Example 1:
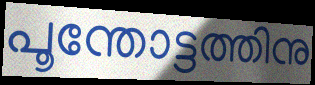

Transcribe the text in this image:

പൂന്തോട്ടത്തിനു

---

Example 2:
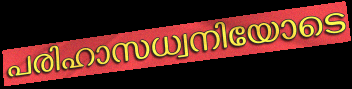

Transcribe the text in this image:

പരിഹാസധ്വനിയോടെ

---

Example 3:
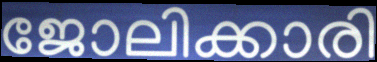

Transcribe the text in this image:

ജോലിക്കാരി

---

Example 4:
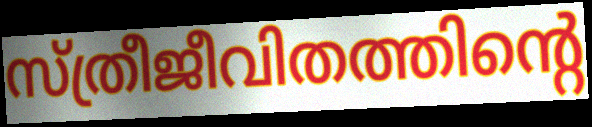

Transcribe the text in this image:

സ്ത്രീജീവിതത്തിന്റെ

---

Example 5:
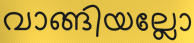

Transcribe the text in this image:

വാങ്ങിയല്ലോ